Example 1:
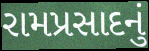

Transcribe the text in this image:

રામપ્રસાદનું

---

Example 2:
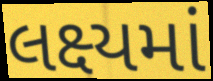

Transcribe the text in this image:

લક્ષ્યમાં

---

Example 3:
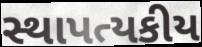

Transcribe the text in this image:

સ્થાપત્યકીય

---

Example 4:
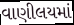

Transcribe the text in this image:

વાણીલયમાં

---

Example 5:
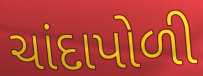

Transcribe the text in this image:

ચાંદાપોળી